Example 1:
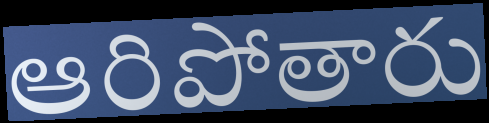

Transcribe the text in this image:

ఆరిపోతారు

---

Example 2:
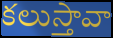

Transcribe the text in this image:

కలుస్తావా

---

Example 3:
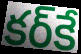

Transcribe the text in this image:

కర్‌కే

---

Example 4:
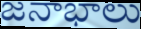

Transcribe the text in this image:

జనాభాలు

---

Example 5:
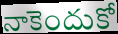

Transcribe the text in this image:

నాకెందుకో